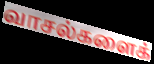
வாசல்களைக்